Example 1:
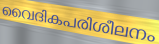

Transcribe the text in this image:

വൈദികപരിശീലനം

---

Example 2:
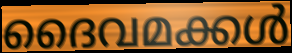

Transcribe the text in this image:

ദൈവമക്കൾ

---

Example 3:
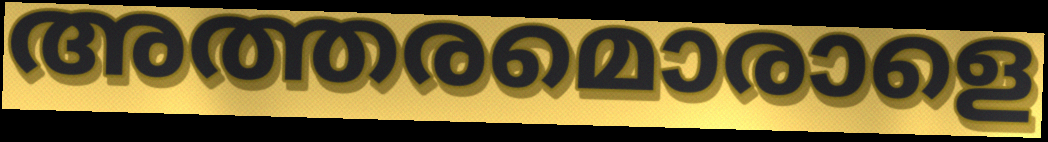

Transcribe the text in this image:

അത്തരമൊരാളെ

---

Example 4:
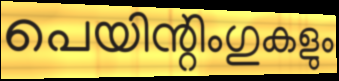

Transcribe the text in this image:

പെയിന്റിംഗുകളും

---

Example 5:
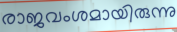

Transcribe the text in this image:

രാജവംശമായിരുന്നു